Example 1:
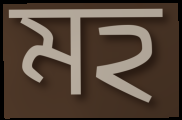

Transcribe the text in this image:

মহ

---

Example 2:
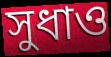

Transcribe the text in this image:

সুধাও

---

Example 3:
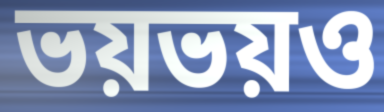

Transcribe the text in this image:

ভয়ভয়ও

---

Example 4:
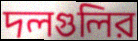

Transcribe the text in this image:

দলগুলির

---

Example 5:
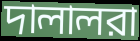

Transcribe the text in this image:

দালালরা